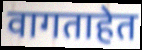
वागताहेत